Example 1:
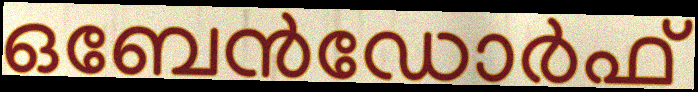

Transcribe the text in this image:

ഒബേൻഡോർഫ്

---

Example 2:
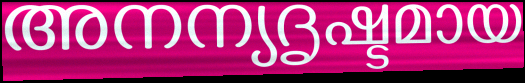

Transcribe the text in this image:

അനന്യദൃഷ്ടമായ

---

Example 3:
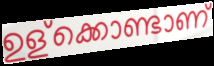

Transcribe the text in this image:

ഉള്ക്കൊണ്ടാണ്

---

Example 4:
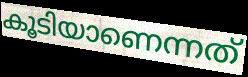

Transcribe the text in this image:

കൂടിയാണെന്നത്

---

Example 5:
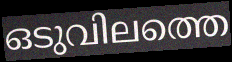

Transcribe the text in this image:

ഒടുവിലത്തെ